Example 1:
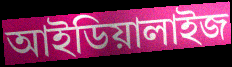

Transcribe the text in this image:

আইডিয়ালাইজ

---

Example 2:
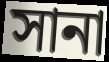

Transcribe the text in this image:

সানা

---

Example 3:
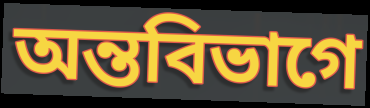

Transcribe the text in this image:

অন্তবিভাগে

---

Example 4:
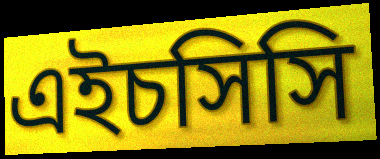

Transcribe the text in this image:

এইচসিসি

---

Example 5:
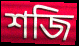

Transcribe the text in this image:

শজি